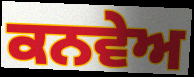
ਕਨਵੇਅ